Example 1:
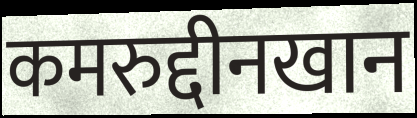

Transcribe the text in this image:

कमरुद्दीनखान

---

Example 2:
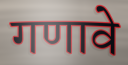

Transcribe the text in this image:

गणावे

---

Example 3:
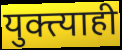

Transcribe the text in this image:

युक्त्याही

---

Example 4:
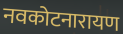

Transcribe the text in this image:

नवकोटनारायण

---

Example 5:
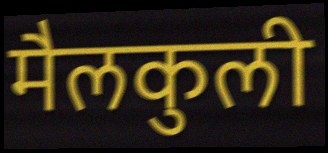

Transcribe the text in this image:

मैलकुली